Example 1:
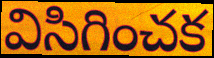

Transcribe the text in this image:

విసిగించక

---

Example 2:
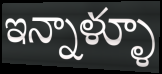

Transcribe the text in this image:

ఇన్నాళ్ళూ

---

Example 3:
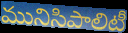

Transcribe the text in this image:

మునిసిపాలిటీ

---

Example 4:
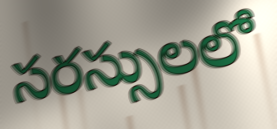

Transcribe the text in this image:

సరస్సులలో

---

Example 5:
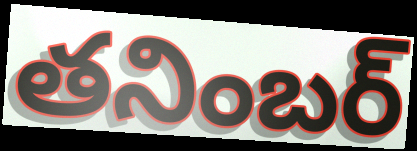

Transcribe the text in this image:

తనింబర్